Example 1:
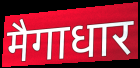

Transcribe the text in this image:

मैगाधार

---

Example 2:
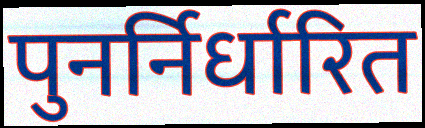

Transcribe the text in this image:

पुनर्निर्धारित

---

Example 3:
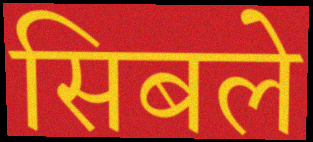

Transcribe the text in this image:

सिबले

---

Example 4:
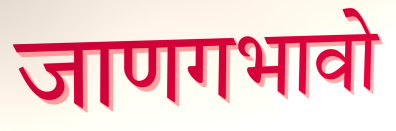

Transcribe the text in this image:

जाणगभावो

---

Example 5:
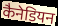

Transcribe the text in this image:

कैनेडियन